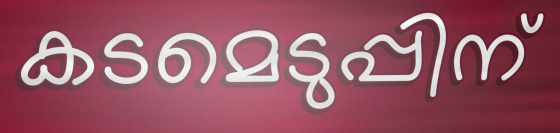
കടമെടുപ്പിന്